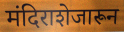
मंदिराशेजारून